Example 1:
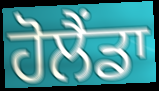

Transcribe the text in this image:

ਹੋਲੈਂਡਾ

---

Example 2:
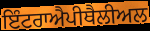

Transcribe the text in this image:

ਇੰਟਰਾਐਪੀਥੈਲੀਅਲ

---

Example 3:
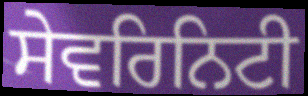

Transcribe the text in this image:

ਸੇਵਰਿਨਿਟੀ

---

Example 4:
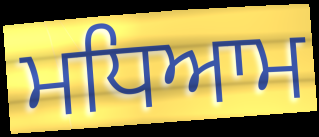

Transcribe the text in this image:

ਮਧਿਆਮ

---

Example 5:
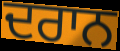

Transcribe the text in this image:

ਦਰਾਨ